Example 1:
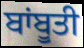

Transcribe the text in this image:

ਬਾਂਬੂਤੀ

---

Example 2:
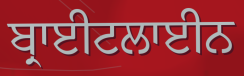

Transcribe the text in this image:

ਬ੍ਰਾਈਟਲਾਈਨ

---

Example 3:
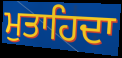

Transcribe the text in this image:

ਮੁਤਾਹਿਦਾ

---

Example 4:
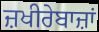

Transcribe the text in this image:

ਜ਼ਖੀਰੇਬਾਜ਼ਾਂ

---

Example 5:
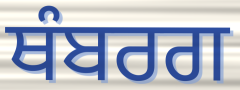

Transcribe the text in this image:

ਥੰਬਰਗ